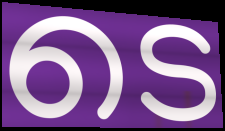
ടെ